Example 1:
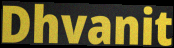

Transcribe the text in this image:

Dhvanit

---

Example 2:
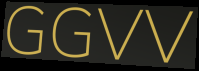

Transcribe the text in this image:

GGVV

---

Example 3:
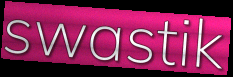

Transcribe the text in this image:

swastik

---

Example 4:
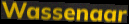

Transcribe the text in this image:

Wassenaar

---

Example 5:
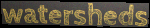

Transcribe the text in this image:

watersheds